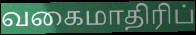
வகைமாதிரிப்